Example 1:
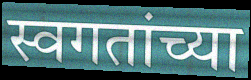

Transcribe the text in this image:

स्वगतांच्या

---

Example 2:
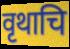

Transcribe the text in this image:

वृथाचि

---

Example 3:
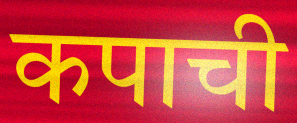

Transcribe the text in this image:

कपाची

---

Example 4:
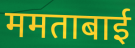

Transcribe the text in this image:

ममताबाई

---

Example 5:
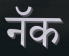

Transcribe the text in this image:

नॅक